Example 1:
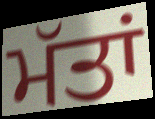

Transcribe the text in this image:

ਮੱਤਾਂ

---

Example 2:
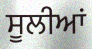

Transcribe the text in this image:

ਸੂਲੀਆਂ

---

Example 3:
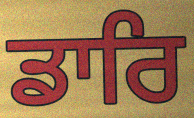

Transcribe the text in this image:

ਡਾਰਿ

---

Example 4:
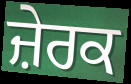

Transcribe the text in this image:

ਜ਼ੇਰਕ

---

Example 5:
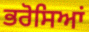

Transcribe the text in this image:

ਭਰੋਸਿਆਂ